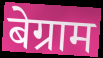
बेग्राम